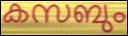
കസബും